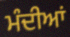
ਮੰਦੀਆਂ